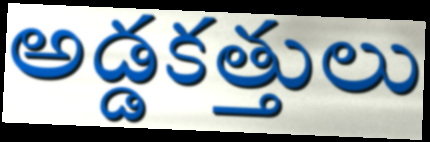
అడ్డకత్తులు